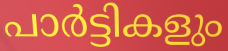
പാർട്ടികളും